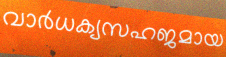
വാർധക്യസഹജമായ